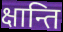
क्षान्ति